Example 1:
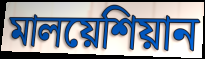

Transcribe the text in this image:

মালয়েশিয়ান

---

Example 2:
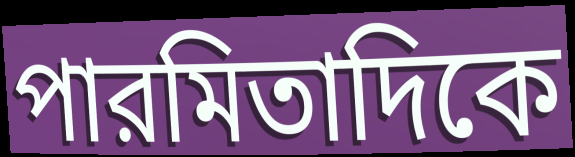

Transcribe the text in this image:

পারমিতাদিকে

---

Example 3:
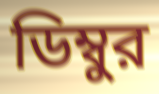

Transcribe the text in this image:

ডিম্বুর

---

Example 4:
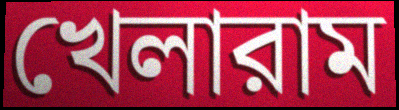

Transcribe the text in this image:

খেলারাম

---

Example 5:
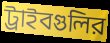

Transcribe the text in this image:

ট্রাইবগুলির